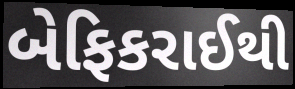
બેફિકરાઈથી